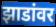
झाडांवर